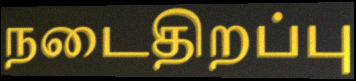
நடைதிறப்பு